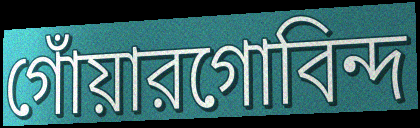
গোঁয়ারগোবিন্দ